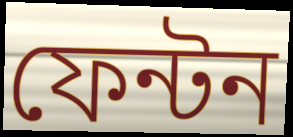
ফেন্টন